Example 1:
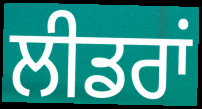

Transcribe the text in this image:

ਲੀਡਰਾਂ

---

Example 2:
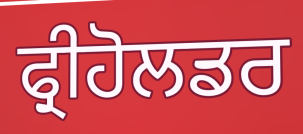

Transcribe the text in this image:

ਫ੍ਰੀਹੋਲਡਰ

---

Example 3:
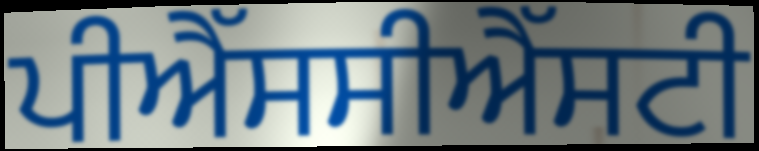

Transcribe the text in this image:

ਪੀਐੱਸਸੀਐੱਸਟੀ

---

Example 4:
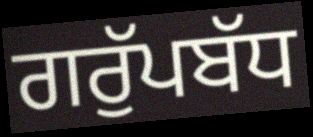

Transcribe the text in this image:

ਗਰੁੱਪਬੱਧ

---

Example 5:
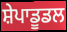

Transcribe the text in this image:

ਸ਼ੇਪਾਡੂਡਲ